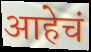
आहेचं